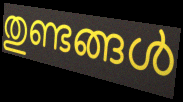
തുണ്ടങ്ങൾ